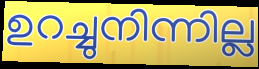
ഉറച്ചുനിന്നില്ല